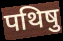
पथिषु